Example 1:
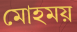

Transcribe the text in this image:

মোহময়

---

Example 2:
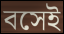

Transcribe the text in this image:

বসেই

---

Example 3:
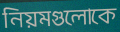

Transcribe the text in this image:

নিয়মগুলোকে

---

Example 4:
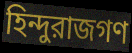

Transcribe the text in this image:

হিন্দুরাজগণ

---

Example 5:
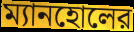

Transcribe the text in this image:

ম্যানহোলের